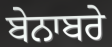
ਬੇਨਾਬਰੇ